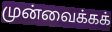
முன்வைக்கக்